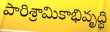
పారిశ్రామికాభివృద్ధి